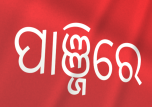
ପାଞ୍ଜିରେ